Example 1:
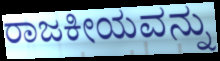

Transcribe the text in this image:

ರಾಜಕೀಯವನ್ನು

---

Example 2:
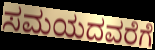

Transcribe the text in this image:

ಸಮಯದವರೆಗೆ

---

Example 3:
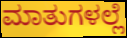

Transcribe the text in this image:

ಮಾತುಗಳಲ್ಲೆ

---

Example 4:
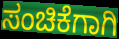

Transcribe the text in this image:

ಸಂಚಿಕೆಗಾಗಿ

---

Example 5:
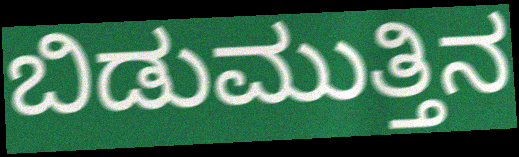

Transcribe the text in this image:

ಬಿಡುಮುತ್ತಿನ